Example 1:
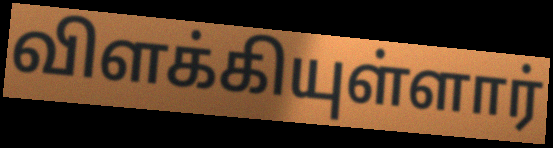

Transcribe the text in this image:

விளக்கியுள்ளார்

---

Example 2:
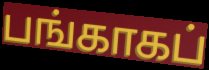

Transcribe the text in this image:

பங்காகப்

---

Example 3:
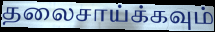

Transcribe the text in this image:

தலைசாய்க்கவும்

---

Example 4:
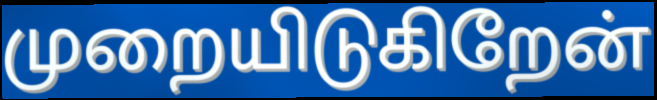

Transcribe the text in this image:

முறையிடுகிறேன்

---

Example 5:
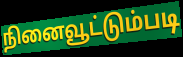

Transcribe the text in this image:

நினைவூட்டும்படி